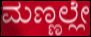
ಮಣ್ಣಲ್ಲೇ